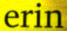
erin